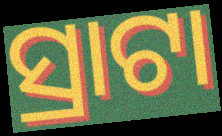
ସ୍ରାଟା